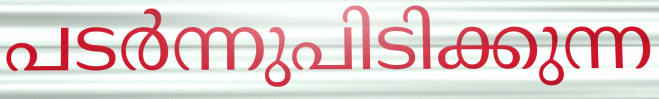
പടർന്നുപിടിക്കുന്ന